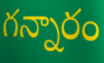
గన్నారం